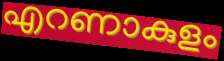
എറണാകുളം